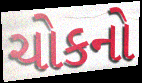
ચોકનો